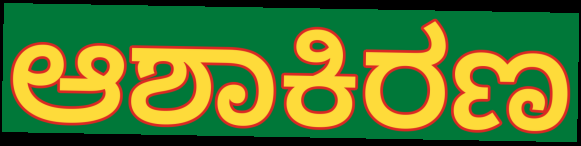
ಆಶಾಕಿರಣ